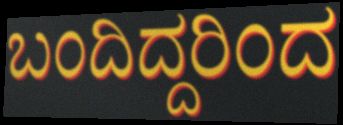
ಬಂದಿದ್ದರಿಂದ